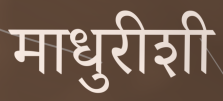
माधुरीशी